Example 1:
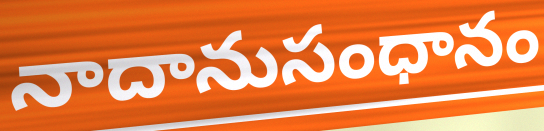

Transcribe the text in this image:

నాదానుసంధానం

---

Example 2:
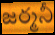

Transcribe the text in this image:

జర్మనీ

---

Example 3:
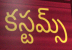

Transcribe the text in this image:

కస్టమ్స్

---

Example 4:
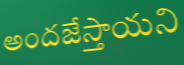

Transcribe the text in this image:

అందజేస్తాయని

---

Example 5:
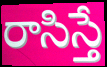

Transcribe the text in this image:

రాసిస్తే